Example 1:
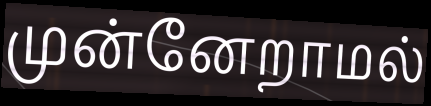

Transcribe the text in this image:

முன்னேறாமல்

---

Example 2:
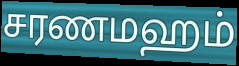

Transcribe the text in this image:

சரணமஹம்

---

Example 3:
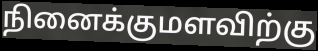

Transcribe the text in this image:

நினைக்குமளவிற்கு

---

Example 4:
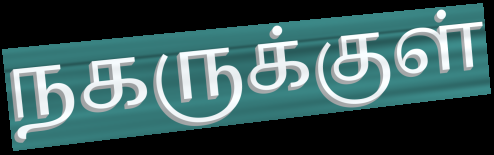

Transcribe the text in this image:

நகருக்குள்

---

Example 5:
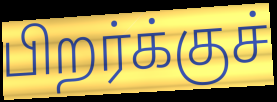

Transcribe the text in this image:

பிறர்க்குச்